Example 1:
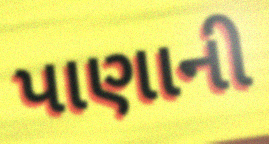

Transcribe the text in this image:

પાણાની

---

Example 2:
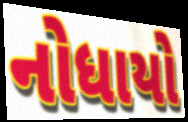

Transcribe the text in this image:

નોધાયો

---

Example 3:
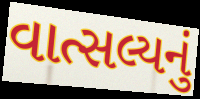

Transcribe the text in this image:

વાત્સલ્યનું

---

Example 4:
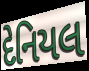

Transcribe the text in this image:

દેનિયલ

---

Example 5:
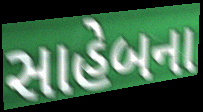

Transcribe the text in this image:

સાહેબના